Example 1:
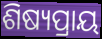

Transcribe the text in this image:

ଶିଷ୍ୟପ୍ରାୟ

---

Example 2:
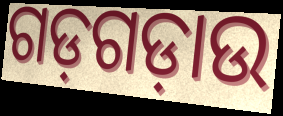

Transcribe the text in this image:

ଗଡ଼ଗଡ଼ାଉ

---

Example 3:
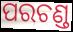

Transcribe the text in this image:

ପରଚଣ୍ଡ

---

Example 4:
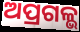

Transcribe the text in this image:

ଅପ୍ରଗଳ୍ଭ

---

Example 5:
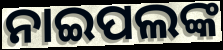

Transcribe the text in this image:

ନାଇପଲଙ୍କ